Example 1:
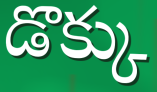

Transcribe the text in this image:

డొక్కు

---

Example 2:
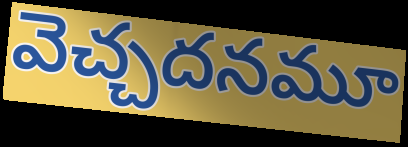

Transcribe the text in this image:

వెచ్చదనమూ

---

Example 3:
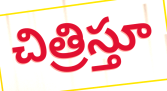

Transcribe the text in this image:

చిత్రిస్తూ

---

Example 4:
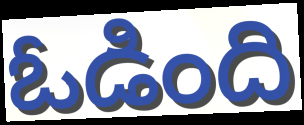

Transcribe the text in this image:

ఓడింది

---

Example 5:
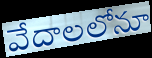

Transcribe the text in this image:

వేదాలలోనూ